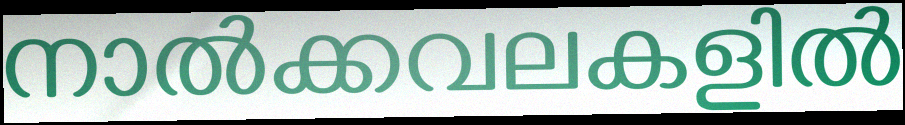
നാൽക്കവലകളിൽ